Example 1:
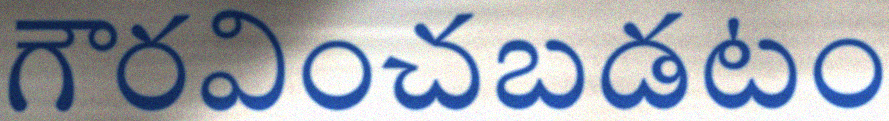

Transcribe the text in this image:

గౌరవించబడటం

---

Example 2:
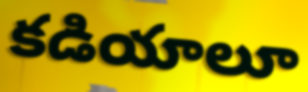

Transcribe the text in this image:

కడియాలూ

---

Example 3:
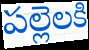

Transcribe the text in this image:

పల్లెలకి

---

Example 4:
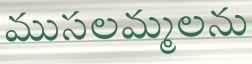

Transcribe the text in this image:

ముసలమ్మలను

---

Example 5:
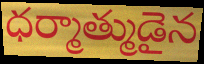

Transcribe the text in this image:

ధర్మాత్ముడైన